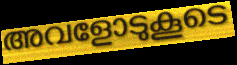
അവളോടുകൂടെ